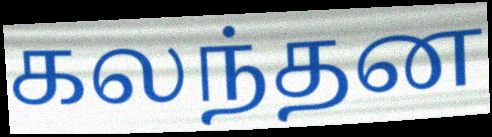
கலந்தன